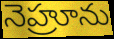
నెహ్రూను